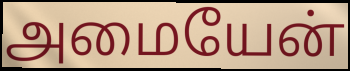
அமையேன்